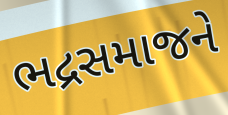
ભદ્રસમાજને